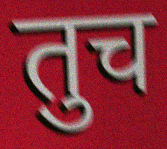
तुच